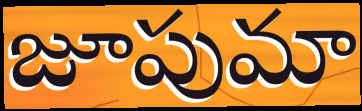
జూపుమా